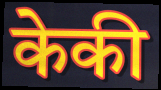
केकी